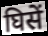
घिसें